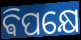
ଵିପକ୍ଷେ